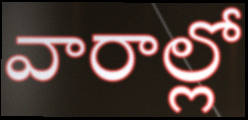
వారాల్లో